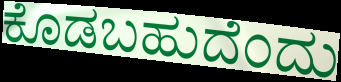
ಕೊಡಬಹುದೆಂದು